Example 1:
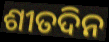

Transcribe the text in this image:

ଶୀତଦିନ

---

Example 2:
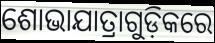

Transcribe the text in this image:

ଶୋଭାଯାତ୍ରାଗୁଡ଼ିକରେ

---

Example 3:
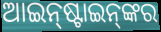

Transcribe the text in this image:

ଆଇନ୍‌ଷ୍ଟାଇନ୍‌ଙ୍କର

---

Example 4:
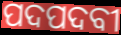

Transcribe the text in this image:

ପଦପଦବୀ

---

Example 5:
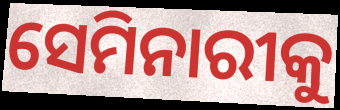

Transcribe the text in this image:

ସେମିନାରୀକୁ